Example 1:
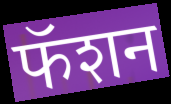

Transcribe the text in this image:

फॅशन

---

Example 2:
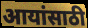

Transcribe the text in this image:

आयांसाठी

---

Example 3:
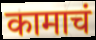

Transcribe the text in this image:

कामाचं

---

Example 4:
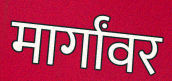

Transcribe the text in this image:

मार्गांवर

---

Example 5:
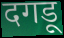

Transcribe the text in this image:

दगडू